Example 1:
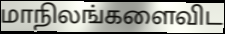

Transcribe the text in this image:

மாநிலங்களைவிட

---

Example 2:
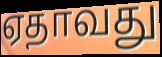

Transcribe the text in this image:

ஏதாவது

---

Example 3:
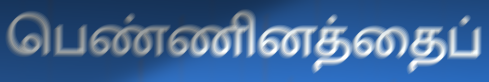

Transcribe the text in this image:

பெண்ணினத்தைப்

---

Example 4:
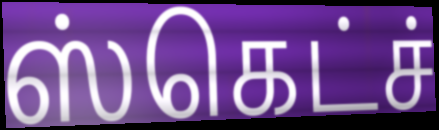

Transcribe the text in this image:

ஸ்கெட்ச்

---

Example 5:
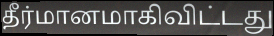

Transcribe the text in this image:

தீர்மானமாகிவிட்டது